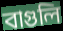
বাগুলি